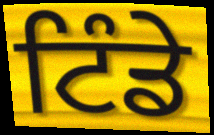
ਟਿੰਡੇ